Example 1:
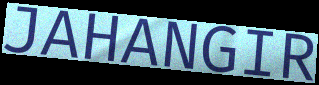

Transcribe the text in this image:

JAHANGIR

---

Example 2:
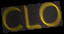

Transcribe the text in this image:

CLO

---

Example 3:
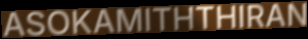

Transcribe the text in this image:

ASOKAMITHTHIRAN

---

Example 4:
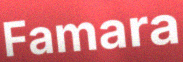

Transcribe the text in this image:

Famara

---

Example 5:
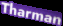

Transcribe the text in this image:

Tharman